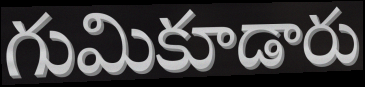
గుమికూడారు